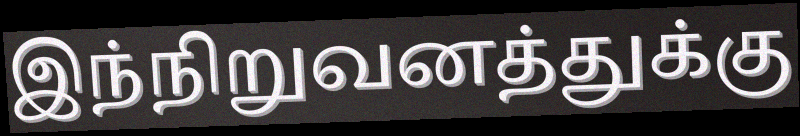
இந்நிறுவனத்துக்கு